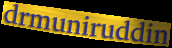
drmuniruddin